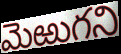
మెఱుగని